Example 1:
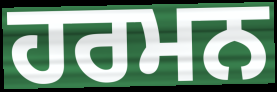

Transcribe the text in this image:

ਹਰਮਨ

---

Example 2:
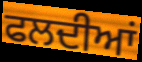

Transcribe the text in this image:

ਫਲਦੀਆਂ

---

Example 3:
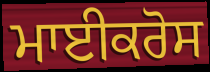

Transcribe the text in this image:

ਮਾਈਕਰੋਸ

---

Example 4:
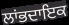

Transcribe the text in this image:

ਲਾਂਭਦਾਇਕ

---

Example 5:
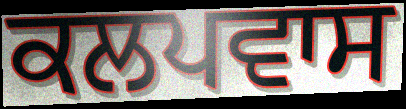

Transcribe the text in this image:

ਕਲਪਵਾਸ